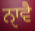
ਨੑਾਵੈ